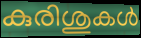
കുരിശുകൾ